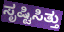
ಸೃಷ್ಟಿಸಿತ್ತು